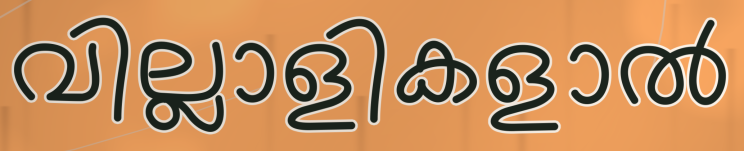
വില്ലാളികളാൽ